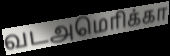
வடஅமெரிக்கா